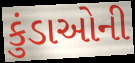
કુંડાઓની